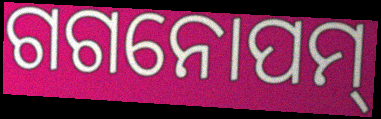
ଗଗନୋପମ୍